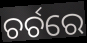
ଚର୍ଚରେ